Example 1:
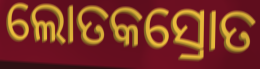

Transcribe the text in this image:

ଲୋତକସ୍ରୋତ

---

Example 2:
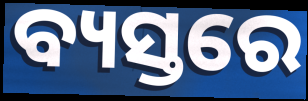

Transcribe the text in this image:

ବ୍ୟସ୍ତରେ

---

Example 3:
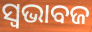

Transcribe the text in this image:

ସ୍ୱଭାବଜ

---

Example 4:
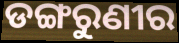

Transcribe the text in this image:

ଡଙ୍ଗରୁଣୀର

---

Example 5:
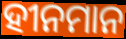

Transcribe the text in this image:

ହୀନମାନ